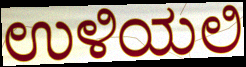
ಉಳಿಯಲಿ